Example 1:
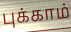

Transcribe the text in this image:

புக்காம்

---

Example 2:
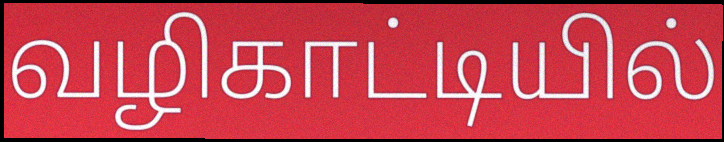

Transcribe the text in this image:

வழிகாட்டியில்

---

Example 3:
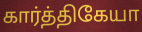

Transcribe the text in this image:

கார்த்திகேயா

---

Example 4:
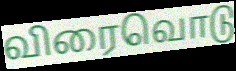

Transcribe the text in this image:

விரைவொடு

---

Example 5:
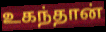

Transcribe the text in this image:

உகந்தான்